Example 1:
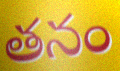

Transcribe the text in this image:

తనం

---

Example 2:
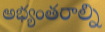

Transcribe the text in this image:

అభ్యంతరాల్ని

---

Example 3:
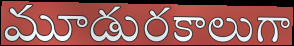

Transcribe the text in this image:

మూడురకాలుగా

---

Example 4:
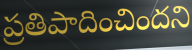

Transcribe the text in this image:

ప్రతిపాదించిందని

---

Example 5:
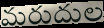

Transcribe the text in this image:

మరుదుల